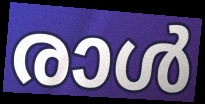
രാൾ